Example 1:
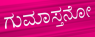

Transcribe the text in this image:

ಗುಮಾಸ್ತನೋ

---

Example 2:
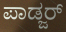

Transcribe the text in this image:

ಪಾಡ್ಜರ್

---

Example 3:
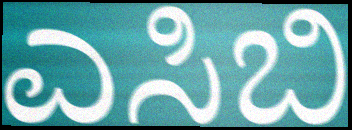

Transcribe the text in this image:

ಎಸಿಬಿ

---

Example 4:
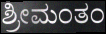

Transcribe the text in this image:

ಶ್ರೀಮಂತಂ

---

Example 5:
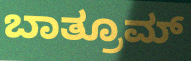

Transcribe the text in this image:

ಬಾತ್ರೂಮ್